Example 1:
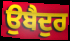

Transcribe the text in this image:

ਉਬੈਦੁਰ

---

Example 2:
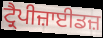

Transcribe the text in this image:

ਟ੍ਰੈਪੀਜ਼ਾਈਡਜ਼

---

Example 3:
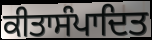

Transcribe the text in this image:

ਕੀਤਾਸੰਪਾਦਿਤ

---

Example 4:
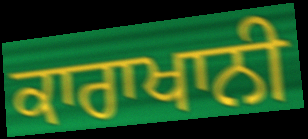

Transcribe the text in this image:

ਕਾਰਾਖਾਨੀ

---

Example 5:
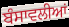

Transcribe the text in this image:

ਬੰਸਾਵਲੀਆਂ